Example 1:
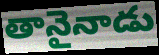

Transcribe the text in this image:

తానైనాడు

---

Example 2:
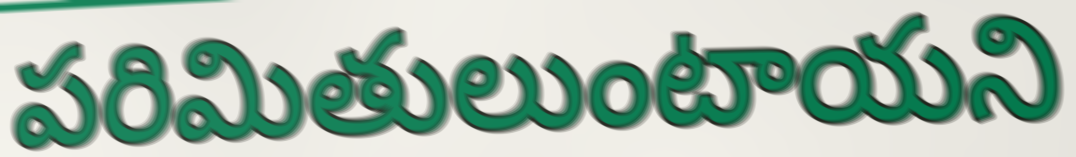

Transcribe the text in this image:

పరిమితులుంటాయని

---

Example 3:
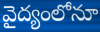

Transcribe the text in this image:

వైద్యంలోనూ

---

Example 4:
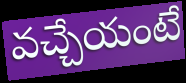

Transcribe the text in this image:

వచ్చేయంటే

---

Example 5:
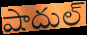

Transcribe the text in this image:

షాదుల్